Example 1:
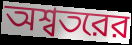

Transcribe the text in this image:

অশ্বতরের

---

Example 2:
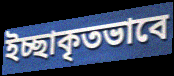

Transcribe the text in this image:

ইচ্ছাকৃতভাবে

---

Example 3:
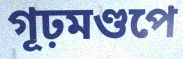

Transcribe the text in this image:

গূঢ়মণ্ডপে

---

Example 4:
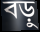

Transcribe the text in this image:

বড়ু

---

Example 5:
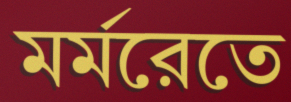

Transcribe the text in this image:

মর্মরেতে